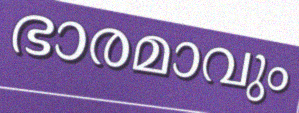
ഭാരമാവും